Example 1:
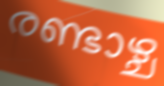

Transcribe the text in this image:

രണ്ടാഴ്ച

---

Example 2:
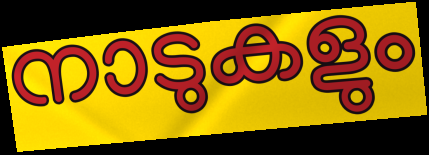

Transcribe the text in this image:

നാടുകളും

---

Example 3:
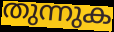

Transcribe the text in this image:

തുന്നുക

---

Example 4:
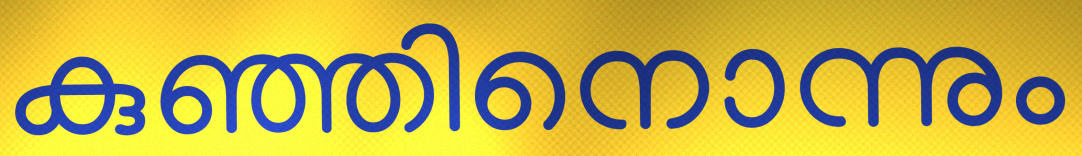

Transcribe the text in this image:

കുഞ്ഞിനൊന്നും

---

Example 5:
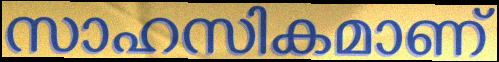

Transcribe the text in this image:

സാഹസികമാണ്